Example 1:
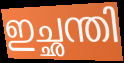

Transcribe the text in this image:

ഇച്ഛന്തി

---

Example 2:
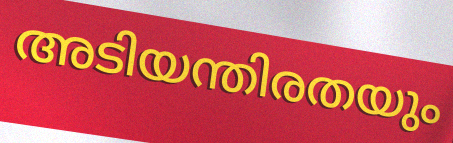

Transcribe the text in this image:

അടിയന്തിരതയും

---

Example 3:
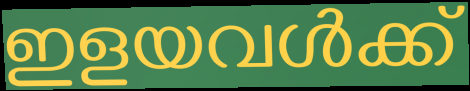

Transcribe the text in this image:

ഇളയവൾക്ക്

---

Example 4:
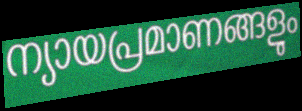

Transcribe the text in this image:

ന്യായപ്രമാണങ്ങളും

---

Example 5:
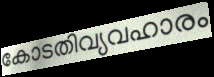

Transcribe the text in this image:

കോടതിവ്യവഹാരം